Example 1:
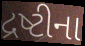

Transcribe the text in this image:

દ્રષ્ટીના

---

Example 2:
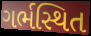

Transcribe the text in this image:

ગર્ભસ્થિત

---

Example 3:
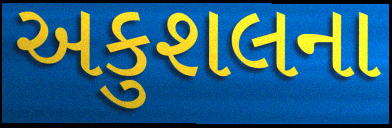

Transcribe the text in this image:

અકુશલના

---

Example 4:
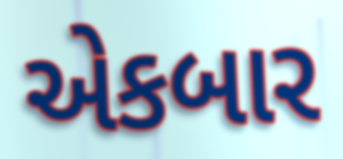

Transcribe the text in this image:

એકબાર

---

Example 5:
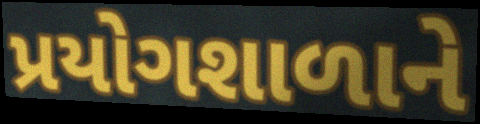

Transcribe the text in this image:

પ્રયોગશાળાને